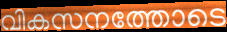
വികസനത്തോടെ